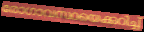
രോഗാവസ്ഥയെക്കുറിച്ച്